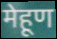
मेहूण